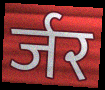
र्जर